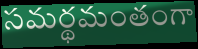
సమర్థమంతంగా